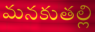
మనకుతల్లి